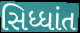
સિધ્ધાંત